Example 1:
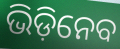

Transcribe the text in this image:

ଭିଡ଼ିନେବ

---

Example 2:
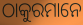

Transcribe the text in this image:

ଠାକୁରମାନେ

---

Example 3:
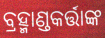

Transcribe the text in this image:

ବ୍ରହ୍ମାଣ୍ଡକର୍ତ୍ତାଙ୍କ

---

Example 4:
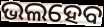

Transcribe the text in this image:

ଭଲହେବ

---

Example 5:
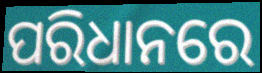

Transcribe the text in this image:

ପରିଧାନରେ